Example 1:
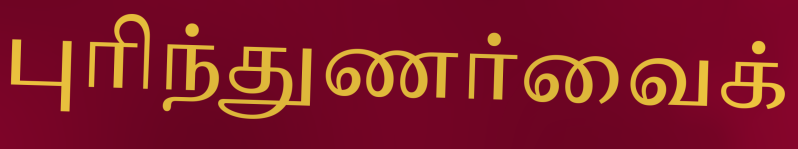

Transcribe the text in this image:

புரிந்துணர்வைக்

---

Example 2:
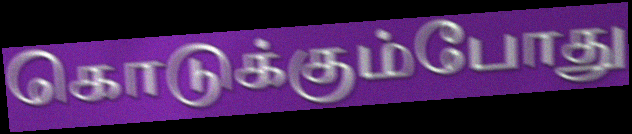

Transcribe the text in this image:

கொடுக்கும்போது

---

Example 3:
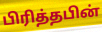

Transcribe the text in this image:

பிரித்தபின்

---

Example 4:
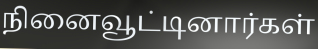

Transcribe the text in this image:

நினைவூட்டினார்கள்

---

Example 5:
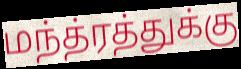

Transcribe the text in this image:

மந்த்ரத்துக்கு